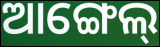
ଆଙ୍ଗେଲ୍